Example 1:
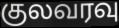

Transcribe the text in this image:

குலவரவு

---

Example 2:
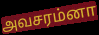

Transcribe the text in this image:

அவசரம்னா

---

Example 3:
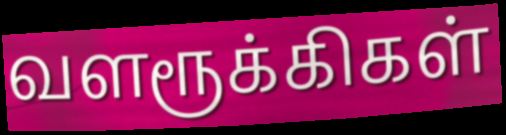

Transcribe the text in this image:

வளரூக்கிகள்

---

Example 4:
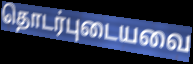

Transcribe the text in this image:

தொடர்புடையவை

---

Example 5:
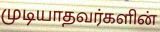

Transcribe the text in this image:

முடியாதவர்களின்